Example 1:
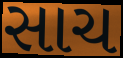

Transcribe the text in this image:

સાચ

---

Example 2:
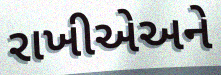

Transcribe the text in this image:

રાખીએઅને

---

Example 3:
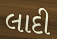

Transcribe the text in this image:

લાદી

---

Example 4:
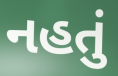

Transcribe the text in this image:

નહતું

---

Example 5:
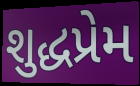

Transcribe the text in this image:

શુદ્ધપ્રેમ